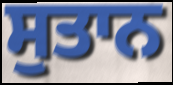
ਸੁਤਾਨ